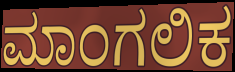
ಮಾಂಗಲಿಕ